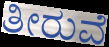
ತೀರುವೆ